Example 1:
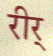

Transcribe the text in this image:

रीर्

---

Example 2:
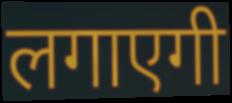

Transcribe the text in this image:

लगाएगी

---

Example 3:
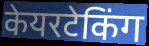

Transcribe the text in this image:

केयरटेकिंग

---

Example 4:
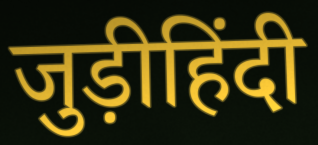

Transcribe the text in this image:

जुड़ीहिंदी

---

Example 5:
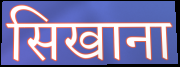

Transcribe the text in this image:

सिखाना